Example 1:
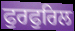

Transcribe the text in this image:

ਫੁਰਫੁਰਿਲ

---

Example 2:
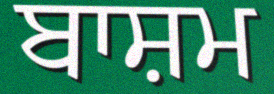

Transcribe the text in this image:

ਬਾਸ਼ਮ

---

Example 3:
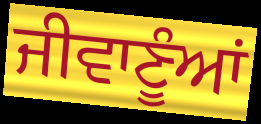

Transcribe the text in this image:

ਜੀਵਾਣੂੰਆਂ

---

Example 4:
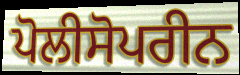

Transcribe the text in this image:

ਪੋਲੀਸੋਪਰੀਨ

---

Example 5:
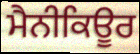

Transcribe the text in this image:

ਮੈਨੀਕਿਊਰ